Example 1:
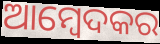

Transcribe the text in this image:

ଆମ୍ବେଦକର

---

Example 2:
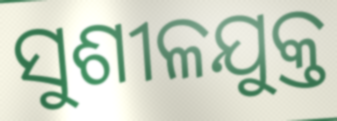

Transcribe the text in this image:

ସୁଶୀଳଯୁକ୍ତ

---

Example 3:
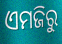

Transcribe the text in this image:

ଏମଜିରୁ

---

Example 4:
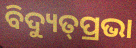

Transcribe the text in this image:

ବିଦ୍ୟୁତ୍‌ପ୍ରଭା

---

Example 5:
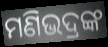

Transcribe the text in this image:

ମଣିଭଦ୍ରଙ୍କ